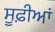
ਸੂਫ਼ੀਆਂ